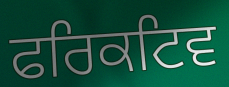
ਫਰਿਕਟਿਵ